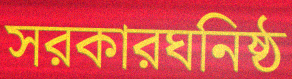
সরকারঘনিষ্ঠ